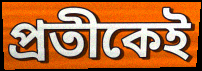
প্রতীকেই